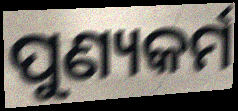
ପୁଣ୍ୟକର୍ମ